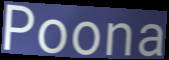
Poona